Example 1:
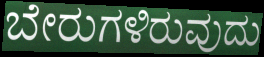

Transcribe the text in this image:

ಬೇರುಗಳಿರುವುದು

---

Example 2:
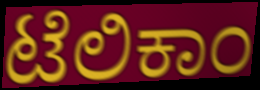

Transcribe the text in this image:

ಟೆಲಿಕಾಂ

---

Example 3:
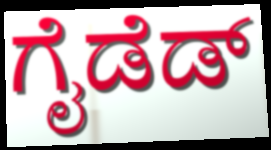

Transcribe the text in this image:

ಗೈಡೆಡ್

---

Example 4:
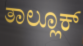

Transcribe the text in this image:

ತಾಲ್ಲೂಕ್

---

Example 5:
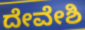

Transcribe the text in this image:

ದೇವೇಶಿ